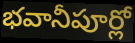
భవానీపూర్లో